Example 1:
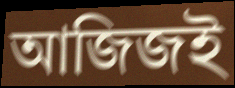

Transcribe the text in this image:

আজিজই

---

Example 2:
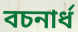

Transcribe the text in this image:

বচনার্ধ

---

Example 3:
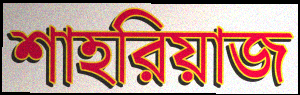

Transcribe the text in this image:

শাহরিয়াজ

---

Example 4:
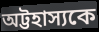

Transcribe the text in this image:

অট্টহাস্যকে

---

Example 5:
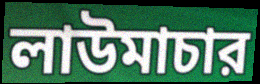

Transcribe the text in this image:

লাউমাচার